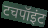
टचपॉइंट